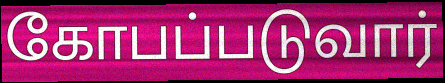
கோபப்படுவார்